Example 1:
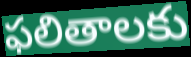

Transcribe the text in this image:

ఫలితాలకు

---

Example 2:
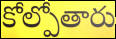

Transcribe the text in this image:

కోల్పోతారు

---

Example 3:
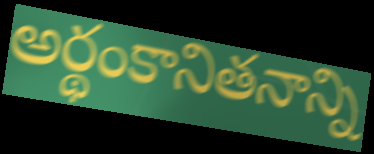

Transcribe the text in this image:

అర్థంకానితనాన్ని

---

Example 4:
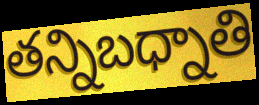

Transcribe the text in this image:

తన్నిబధ్నాతి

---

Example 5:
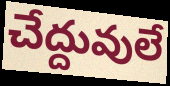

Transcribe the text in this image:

చేద్దువులే